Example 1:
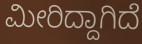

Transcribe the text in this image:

ಮೀರಿದ್ದಾಗಿದೆ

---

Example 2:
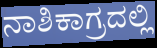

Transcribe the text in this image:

ನಾಶಿಕಾಗ್ರದಲ್ಲಿ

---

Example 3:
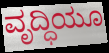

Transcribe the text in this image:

ವೃದ್ಧಿಯೂ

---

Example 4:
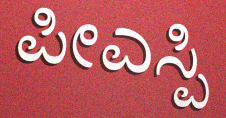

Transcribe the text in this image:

ಪೀಎಸ್ಪಿ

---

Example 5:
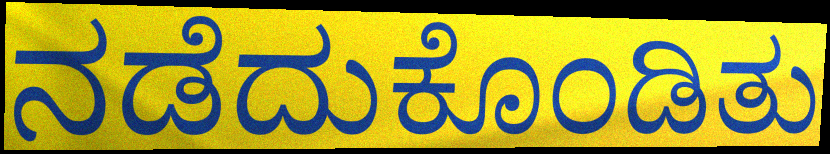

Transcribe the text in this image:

ನಡೆದುಕೊಂಡಿತು